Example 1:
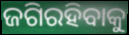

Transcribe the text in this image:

ଜଗିରହିବାକୁ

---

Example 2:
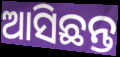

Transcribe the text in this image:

ଆସିଛନ୍ତ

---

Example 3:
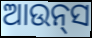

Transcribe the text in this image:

ଆଉନ୍‍ସ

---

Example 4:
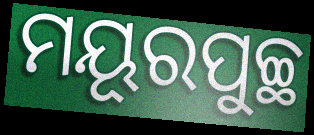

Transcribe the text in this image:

ମୟୂରପୁଚ୍ଛ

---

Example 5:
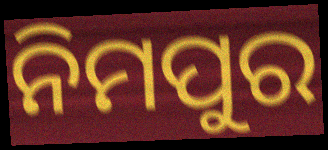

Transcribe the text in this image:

ନିମପୁର